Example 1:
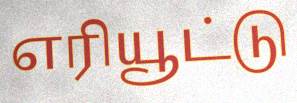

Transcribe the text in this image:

எரியூட்டு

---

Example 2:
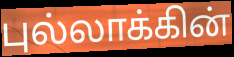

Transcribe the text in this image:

புல்லாக்கின்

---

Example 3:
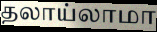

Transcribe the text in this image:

தலாய்லாமா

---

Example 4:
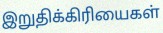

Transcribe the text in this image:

இறுதிக்கிரியைகள்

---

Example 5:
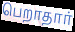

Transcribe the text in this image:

பெறாதார்